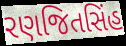
રણજિતસિંહ